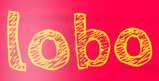
lobo